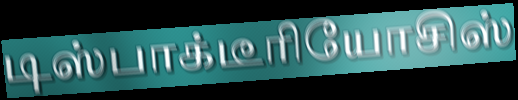
டிஸ்பாக்டீரியோசிஸ்